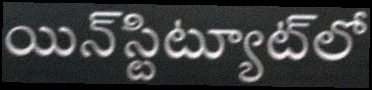
యిన్‌స్టిట్యూట్‌లో